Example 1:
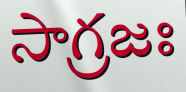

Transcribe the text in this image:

సాగ్రజః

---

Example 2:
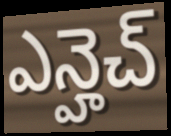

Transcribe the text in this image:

ఎన్హెచ్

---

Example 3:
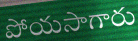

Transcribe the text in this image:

పోయసాగారు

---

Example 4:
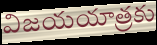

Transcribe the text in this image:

విజయయాత్రకు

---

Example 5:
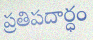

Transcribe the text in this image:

ప్రతిపదార్ధం